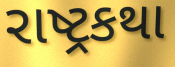
રાષ્ટ્રકથા